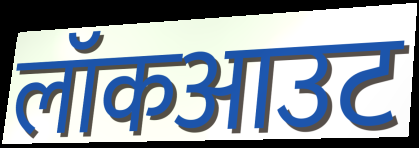
लॉकआउट